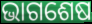
ଭାଗଶେଷ